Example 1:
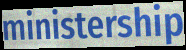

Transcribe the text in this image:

ministership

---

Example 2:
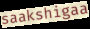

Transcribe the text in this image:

saakshigaa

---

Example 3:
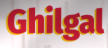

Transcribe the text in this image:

Ghilgal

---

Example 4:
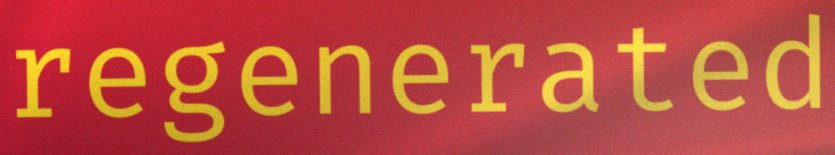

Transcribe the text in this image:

regenerated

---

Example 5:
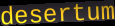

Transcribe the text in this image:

desertum